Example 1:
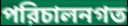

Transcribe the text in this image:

পরিচালনগত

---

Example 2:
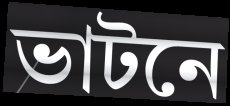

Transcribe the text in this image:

ভাটনে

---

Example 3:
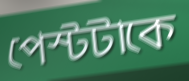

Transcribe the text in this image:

পেস্টটাকে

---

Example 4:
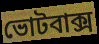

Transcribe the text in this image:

ভোটবাক্স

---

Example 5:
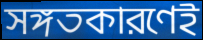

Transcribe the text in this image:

সঙ্গতকারণেই